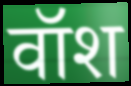
वॉश